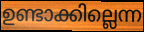
ഉണ്ടാക്കില്ലെന്ന